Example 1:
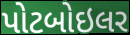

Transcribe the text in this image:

પોટબોઇલર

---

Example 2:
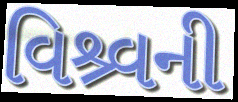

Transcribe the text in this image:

વિશ્ર્વની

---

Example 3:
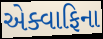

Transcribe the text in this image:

એક્વાફિના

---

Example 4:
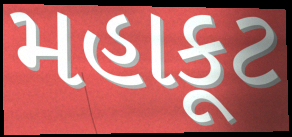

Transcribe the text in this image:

મહાકૂટ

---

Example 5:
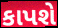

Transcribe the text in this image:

કાપશે